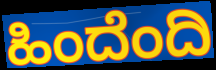
ಹಿಂದೆಂದಿ